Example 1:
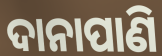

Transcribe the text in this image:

ଦାନାପାଣି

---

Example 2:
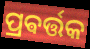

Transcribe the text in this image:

ପ୍ରଵର୍ତ୍ତକ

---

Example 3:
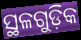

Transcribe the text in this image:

ସ୍ଥଳଗୁଡ଼ିକ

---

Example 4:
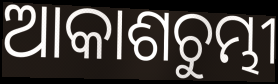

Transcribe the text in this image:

ଆକାଶଚୁମ୍ଭୀ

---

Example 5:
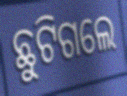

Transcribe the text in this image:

ଛୁଟିଗଲେ